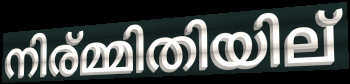
നിര്മ്മിതിയില്